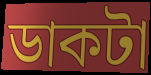
ডাকটা